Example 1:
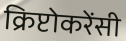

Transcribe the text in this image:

क्रिप्टोकरेंसी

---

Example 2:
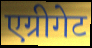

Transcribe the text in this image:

एग्रीगेट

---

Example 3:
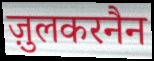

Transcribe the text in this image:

ज़ुलकरनैन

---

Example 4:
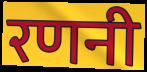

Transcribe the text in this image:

रणनी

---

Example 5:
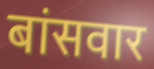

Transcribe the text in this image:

बांसवार